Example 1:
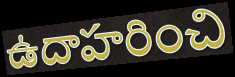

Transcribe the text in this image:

ఉదాహరించి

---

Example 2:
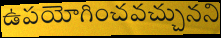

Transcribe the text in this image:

ఉపయోగించవచ్చునని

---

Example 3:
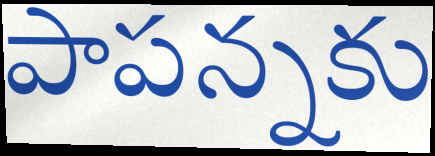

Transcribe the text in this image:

పాపన్నకు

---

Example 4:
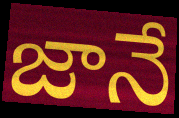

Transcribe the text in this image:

జానే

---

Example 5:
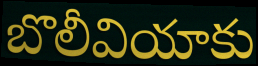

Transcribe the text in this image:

బొలీవియాకు